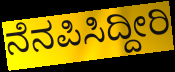
ನೆನಪಿಸಿದ್ದೀರಿ